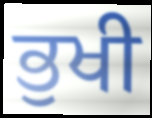
ਭੁਖੀ